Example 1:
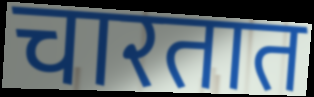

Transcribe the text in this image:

चारतात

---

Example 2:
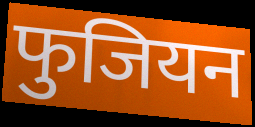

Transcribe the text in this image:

फुजियन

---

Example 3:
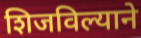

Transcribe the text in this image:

शिजविल्याने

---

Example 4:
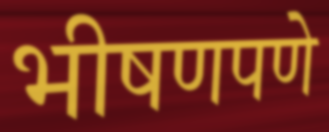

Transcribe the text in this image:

भीषणपणे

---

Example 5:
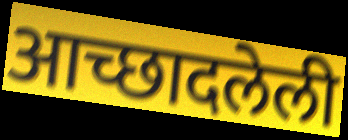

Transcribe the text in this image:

आच्छादलेली